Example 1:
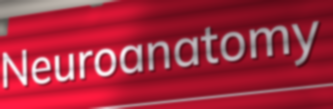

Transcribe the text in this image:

Neuroanatomy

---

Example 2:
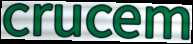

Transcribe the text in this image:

crucem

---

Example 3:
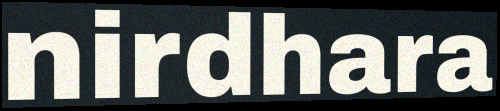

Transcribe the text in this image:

nirdhara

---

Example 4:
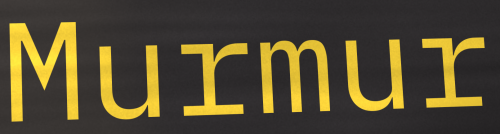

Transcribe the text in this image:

Murmur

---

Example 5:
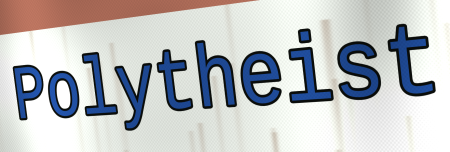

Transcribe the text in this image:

Polytheist